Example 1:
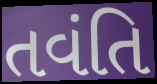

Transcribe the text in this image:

તવંતિ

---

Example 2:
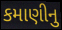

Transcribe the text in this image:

કમાણીનુ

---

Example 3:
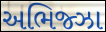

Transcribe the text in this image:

અભિજ્ઝા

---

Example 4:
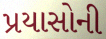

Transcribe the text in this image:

પ્રયાસોની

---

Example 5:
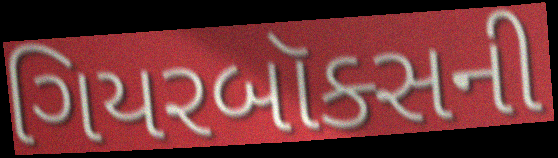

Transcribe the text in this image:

ગિયરબૉક્સની